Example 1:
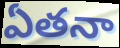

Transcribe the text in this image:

ఏతనా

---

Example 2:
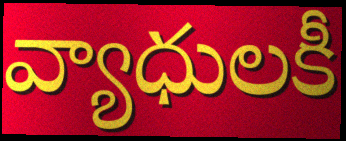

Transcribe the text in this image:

వ్యాధులకీ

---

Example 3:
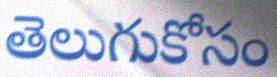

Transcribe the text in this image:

తెలుగుకోసం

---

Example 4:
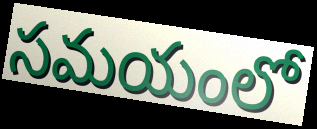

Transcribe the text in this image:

సమయంలో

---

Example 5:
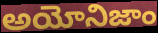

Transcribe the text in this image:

అయోనిజాం